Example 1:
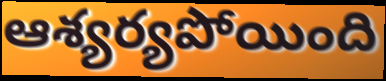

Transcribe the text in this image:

ఆశ్యర్యపోయింది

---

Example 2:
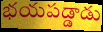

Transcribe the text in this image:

భయపడ్డాడు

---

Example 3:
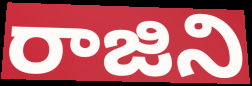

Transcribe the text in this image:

రాజిని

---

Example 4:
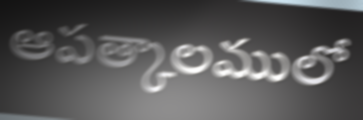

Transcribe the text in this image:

ఆపత్కాలములో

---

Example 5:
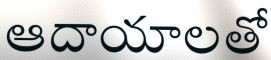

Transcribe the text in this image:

ఆదాయాలతో